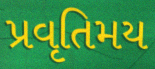
પ્રવૃતિમય